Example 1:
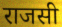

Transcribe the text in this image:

राजसी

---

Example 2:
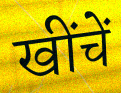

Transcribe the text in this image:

खींचें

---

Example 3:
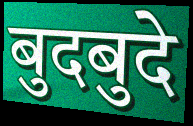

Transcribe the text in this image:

बुदबुदे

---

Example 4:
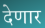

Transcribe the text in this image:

देणार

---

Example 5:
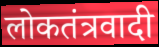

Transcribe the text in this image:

लोकतंत्रवादी